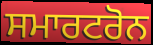
ਸਮਾਰਟਰੋਨ